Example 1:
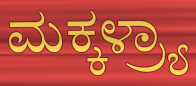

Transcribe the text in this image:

ಮಕ್ಕಳ್ರ್ಯಾ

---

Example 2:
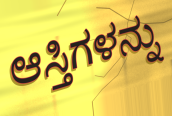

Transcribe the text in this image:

ಆಸ್ತಿಗಳನ್ನು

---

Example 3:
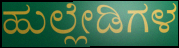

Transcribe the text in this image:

ಹುಲ್ಲೇಡಿಗಳ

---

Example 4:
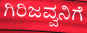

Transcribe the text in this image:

ಗಿರಿಜವ್ವನಿಗೆ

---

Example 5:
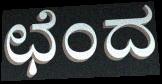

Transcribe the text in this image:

ಛೆಂದ